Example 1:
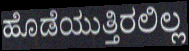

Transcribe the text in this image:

ಹೊಡೆಯುತ್ತಿರಲಿಲ್ಲ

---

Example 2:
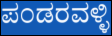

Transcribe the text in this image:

ಪಂಡರವಳ್ಳಿ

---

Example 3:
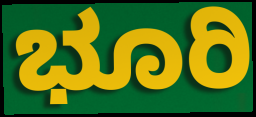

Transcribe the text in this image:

ಭೂರಿ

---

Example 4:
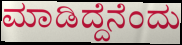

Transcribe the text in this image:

ಮಾಡಿದ್ದೆನೆಂದು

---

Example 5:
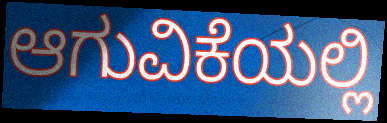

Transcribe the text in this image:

ಆಗುವಿಕೆಯಲ್ಲಿ